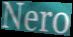
Nero